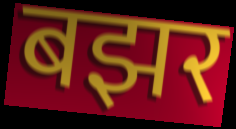
बझर